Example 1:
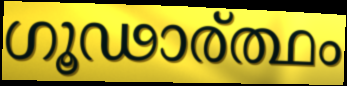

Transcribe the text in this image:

ഗൂഢാര്ത്ഥം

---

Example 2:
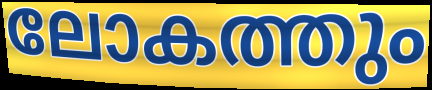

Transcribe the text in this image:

ലോകത്തും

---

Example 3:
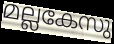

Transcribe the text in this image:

മല്ലകേസു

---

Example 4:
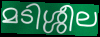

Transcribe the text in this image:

മടിശ്ശീല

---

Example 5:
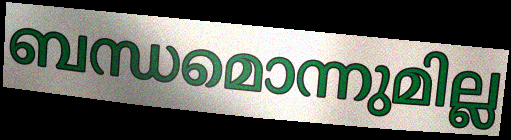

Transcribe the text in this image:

ബന്ധമൊന്നുമില്ല